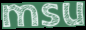
msu